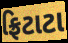
ફ્રિટાટા